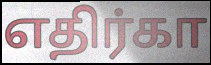
எதிர்கா